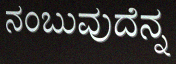
ನಂಬುವುದೆನ್ನ